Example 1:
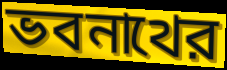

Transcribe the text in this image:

ভবনাথের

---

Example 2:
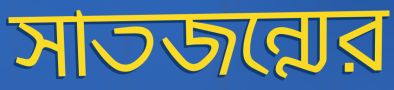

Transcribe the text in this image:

সাতজন্মের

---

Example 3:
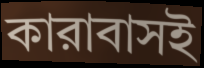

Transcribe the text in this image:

কারাবাসই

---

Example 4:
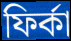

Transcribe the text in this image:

ফির্কা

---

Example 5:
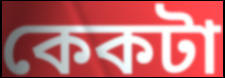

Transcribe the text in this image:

কেকটা